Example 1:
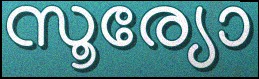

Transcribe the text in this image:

സൂര്യോ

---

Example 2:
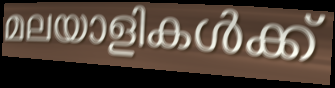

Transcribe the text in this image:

മലയാളികൾക്ക്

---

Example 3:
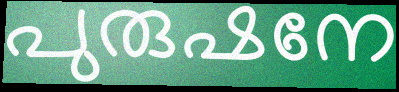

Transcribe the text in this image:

പുരുഷനേ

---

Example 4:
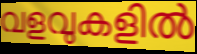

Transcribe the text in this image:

വളവുകളിൽ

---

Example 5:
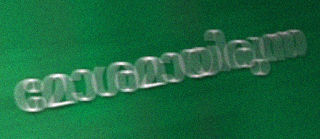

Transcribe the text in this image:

മോശമായിരുന്ന